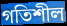
গতিশীল